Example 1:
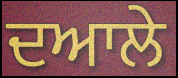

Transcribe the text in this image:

ਦਆਲੇ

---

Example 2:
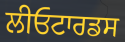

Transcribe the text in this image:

ਲੀਓਟਾਰਡਸ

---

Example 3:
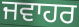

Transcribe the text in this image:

ਜਵਾਹਰ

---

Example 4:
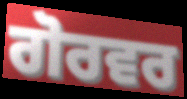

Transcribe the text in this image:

ਗੋਰਵਰ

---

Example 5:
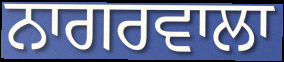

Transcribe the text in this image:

ਨਾਗਰਵਾਲਾ